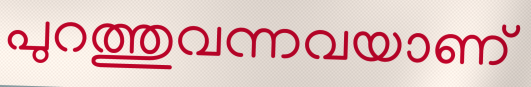
പുറത്തുവന്നവയാണ്